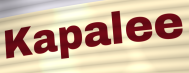
Kapalee